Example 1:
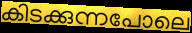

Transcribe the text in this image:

കിടക്കുന്നപോലെ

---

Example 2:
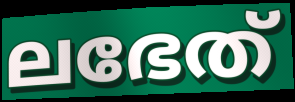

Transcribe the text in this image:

ലഭേത്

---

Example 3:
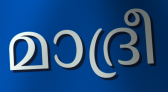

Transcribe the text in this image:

മാദ്രീ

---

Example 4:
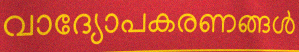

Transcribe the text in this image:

വാദ്യോപകരണങ്ങൾ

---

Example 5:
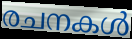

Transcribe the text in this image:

രചനകൾ